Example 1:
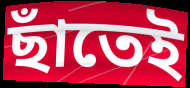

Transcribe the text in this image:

ছাঁতেই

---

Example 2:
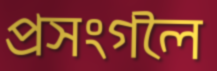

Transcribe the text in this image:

প্ৰসংগলৈ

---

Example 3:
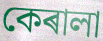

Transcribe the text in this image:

কেৰালা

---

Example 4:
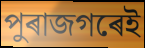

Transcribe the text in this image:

পুৰাজগৰেই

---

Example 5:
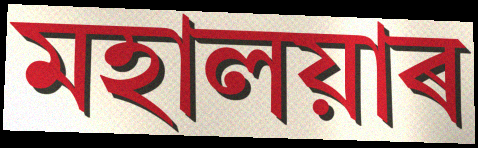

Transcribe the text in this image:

মহালয়াৰ